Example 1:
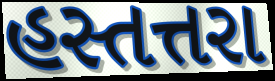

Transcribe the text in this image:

હસ્તત્તરા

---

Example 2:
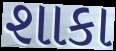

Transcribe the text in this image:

શાકા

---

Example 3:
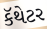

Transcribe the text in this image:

કૅથેટર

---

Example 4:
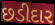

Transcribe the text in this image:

છડીદાર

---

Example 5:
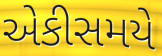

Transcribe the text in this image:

એકીસમયે